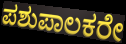
ಪಶುಪಾಲಕರೇ